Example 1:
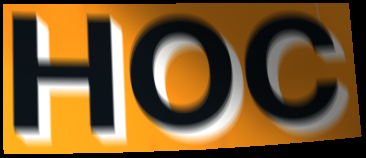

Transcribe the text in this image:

HOC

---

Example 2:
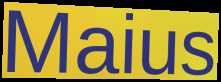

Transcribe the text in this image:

Maius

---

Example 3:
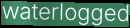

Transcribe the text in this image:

waterlogged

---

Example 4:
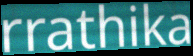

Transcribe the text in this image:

rrathika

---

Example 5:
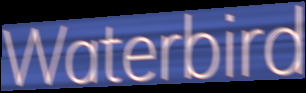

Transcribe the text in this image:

Waterbird